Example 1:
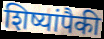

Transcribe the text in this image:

शिष्यांपैकी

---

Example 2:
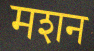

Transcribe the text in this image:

मशन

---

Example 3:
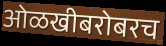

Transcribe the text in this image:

ओळखीबरोबरच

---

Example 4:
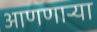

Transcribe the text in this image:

आणणाऱ्या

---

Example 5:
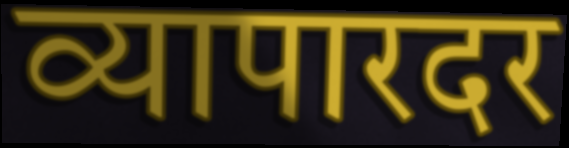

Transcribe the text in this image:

व्यापारदर